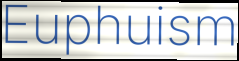
Euphuism